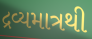
દ્રવ્યમાત્રથી